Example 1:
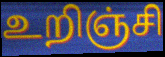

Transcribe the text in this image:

உறிஞ்சி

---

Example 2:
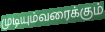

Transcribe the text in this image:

முடியும்வரைக்கும்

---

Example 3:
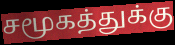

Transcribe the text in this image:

சமூகத்துக்கு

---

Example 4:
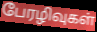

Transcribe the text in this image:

பேரழிவுகள்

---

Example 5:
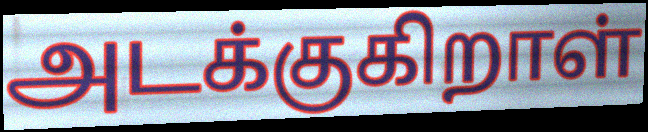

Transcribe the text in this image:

அடக்குகிறாள்